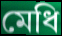
মেধি